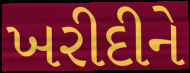
ખરીદીને